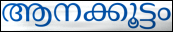
ആനക്കൂട്ടം